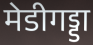
मेडीगड्डा